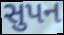
સુપન